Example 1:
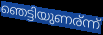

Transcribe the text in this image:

ഞെട്ടിയുണര്ന്ന്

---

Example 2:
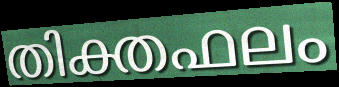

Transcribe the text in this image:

തിക്തഫലം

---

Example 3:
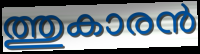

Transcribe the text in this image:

ത്തുകാരൻ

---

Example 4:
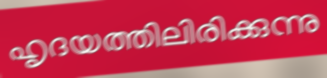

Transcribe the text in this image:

ഹൃദയത്തിലിരിക്കുന്നു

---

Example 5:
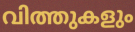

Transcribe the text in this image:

വിത്തുകളും